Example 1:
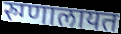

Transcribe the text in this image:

रुग्णालायत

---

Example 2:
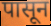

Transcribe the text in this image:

पासून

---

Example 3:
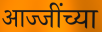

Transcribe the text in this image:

आज्जींच्या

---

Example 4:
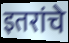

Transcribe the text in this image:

इतरांचे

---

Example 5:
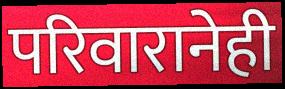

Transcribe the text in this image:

परिवारानेही